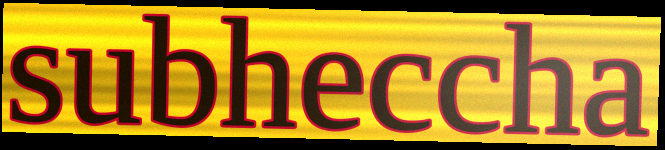
subheccha